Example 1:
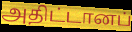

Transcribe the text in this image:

அதிட்டானப்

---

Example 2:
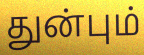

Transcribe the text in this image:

துன்பும்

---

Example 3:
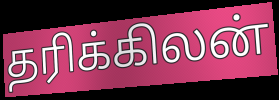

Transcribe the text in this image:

தரிக்கிலன்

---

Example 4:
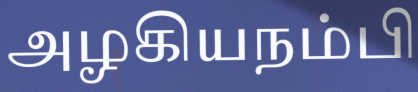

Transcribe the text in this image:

அழகியநம்பி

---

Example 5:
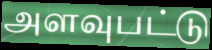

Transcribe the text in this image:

அளவுபட்டு